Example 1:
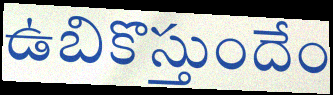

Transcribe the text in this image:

ఉబికొస్తుందేం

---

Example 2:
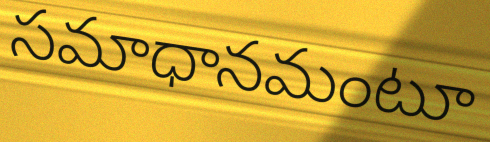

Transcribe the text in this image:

సమాధానమంటూ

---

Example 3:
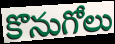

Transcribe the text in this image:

కొనుగోలు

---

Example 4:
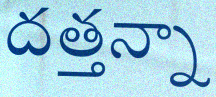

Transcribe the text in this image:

దత్తన్నా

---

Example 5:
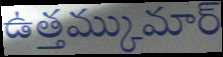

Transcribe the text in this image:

ఉత్తమ్కుమార్